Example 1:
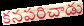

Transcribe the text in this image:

కనపరిచాడు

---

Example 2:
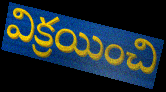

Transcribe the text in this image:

విక్రయించి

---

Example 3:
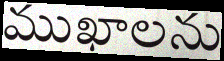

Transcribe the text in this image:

ముఖాలను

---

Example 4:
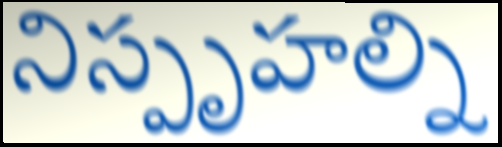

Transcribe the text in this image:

నిస్పృహల్ని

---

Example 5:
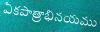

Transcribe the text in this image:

ఏకపాత్రాభినయము